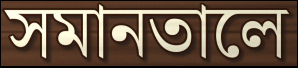
সমানতালে